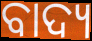
ବାଦ୍ଯ